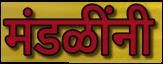
मंडळींनी